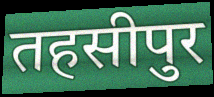
तहसीपुर